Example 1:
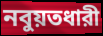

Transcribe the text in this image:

নবুয়তধারী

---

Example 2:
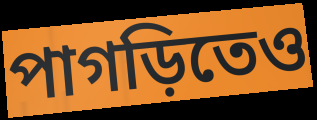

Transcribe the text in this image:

পাগড়িতেও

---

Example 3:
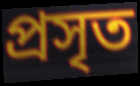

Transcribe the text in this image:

প্রসৃত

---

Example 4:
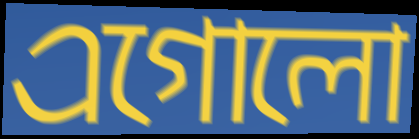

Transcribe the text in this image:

এগোলো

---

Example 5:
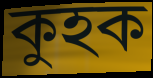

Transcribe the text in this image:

কুহক